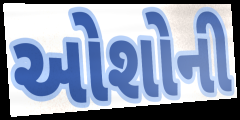
ઓશોની